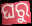
ଘରୁ